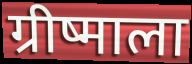
ग्रीष्माला